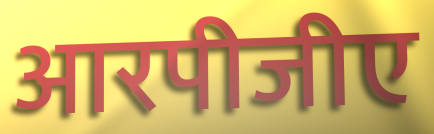
आरपीजीए